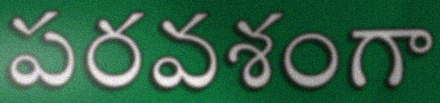
పరవశంగా